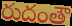
రుదంతౌ